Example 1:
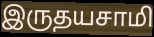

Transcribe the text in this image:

இருதயசாமி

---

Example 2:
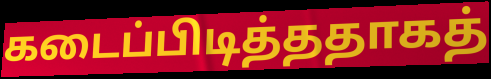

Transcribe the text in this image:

கடைப்பிடித்ததாகத்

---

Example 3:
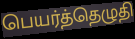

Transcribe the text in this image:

பெயர்த்தெழுதி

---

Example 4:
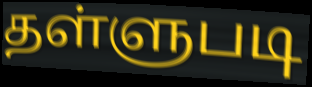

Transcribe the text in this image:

தள்ளுபடி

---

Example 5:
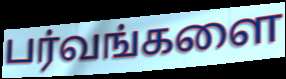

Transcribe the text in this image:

பர்வங்களை